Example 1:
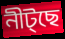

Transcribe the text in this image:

নীট্‌ছে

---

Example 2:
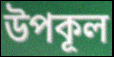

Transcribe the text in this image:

উপকূল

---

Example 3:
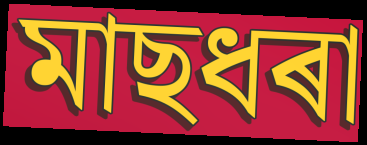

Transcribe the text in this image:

মাছধৰা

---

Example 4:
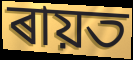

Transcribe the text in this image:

ৰায়ত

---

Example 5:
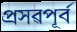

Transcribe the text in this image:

প্ৰসৱপূৰ্ব